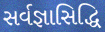
સર્વજ્ઞાસિદ્ધિ